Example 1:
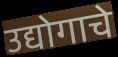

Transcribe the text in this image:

उद्योगाचे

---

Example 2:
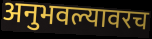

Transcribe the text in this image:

अनुभवल्यावरच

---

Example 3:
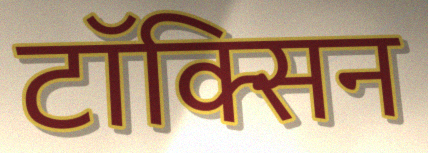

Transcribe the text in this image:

टॉक्सिन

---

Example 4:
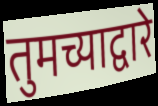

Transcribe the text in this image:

तुमच्याद्वारे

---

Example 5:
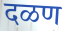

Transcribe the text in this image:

दळण